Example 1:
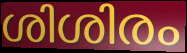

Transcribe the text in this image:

ശിശിരം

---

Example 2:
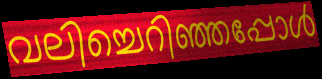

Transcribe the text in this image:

വലിച്ചെറിഞ്ഞപ്പോൾ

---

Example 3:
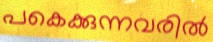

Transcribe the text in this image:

പകെക്കുന്നവരിൽ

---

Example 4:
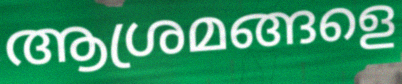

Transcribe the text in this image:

ആശ്രമങ്ങളെ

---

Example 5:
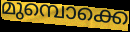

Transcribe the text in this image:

മുമ്പൊക്കെ